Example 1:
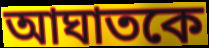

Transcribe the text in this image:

আঘাতকে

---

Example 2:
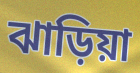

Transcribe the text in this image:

ঝাড়িয়া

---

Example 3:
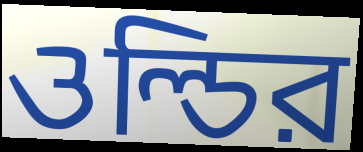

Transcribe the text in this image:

ওল্ডির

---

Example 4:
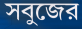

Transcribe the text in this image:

সবুজের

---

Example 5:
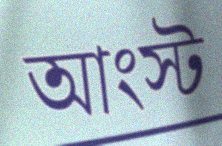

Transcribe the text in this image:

আংস্ট